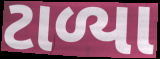
ટાળ્યા